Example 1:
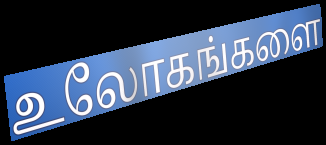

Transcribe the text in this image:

உலோகங்களை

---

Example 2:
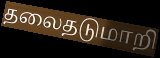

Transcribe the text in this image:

தலைதடுமாறி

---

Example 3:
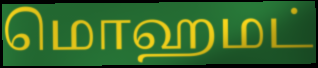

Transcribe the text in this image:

மொஹமட்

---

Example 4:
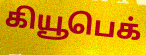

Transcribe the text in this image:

கியூபெக்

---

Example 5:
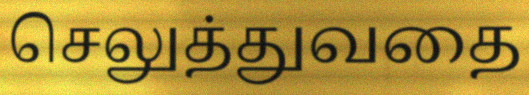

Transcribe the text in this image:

செலுத்துவதை